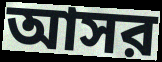
আসর